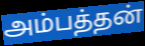
அம்பத்தன்